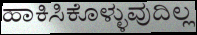
ಹಾಕಿಸಿಕೊಳ್ಳುವುದಿಲ್ಲ